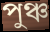
পুঞ্চ